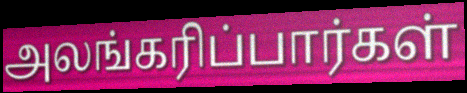
அலங்கரிப்பார்கள்